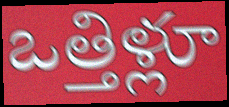
ఒత్తిళ్లూ